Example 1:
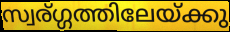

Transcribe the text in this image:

സ്വര്ഗ്ഗത്തിലേയ്ക്കു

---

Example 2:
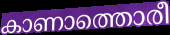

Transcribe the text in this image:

കാണാത്തൊരീ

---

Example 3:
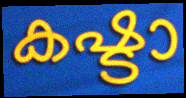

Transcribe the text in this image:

കഷ്ടാ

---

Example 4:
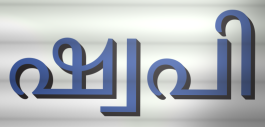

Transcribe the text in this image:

ഷ്വപി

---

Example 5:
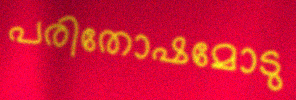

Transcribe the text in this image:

പരിതോഷമോടു